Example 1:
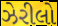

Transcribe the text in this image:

ઝેરીલો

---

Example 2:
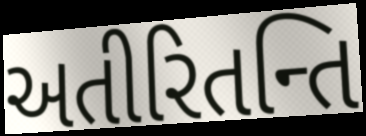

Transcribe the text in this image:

અતીરિતન્તિ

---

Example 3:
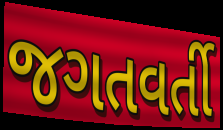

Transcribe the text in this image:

જગતવર્તી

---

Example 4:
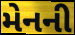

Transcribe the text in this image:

મેનની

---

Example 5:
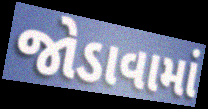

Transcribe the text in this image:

જોડાવામાં